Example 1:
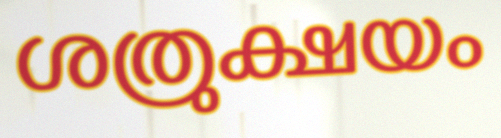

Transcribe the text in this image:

ശത്രുക്ഷയം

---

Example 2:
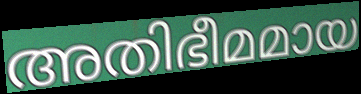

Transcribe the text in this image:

അതിഭീമമായ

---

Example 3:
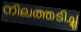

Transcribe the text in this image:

നിലത്തടിച്ചു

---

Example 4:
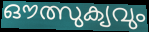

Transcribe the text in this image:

ഔത്സുക്യവും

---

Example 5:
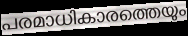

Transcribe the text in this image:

പരമാധികാരത്തെയും